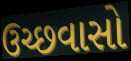
ઉચ્છવાસો